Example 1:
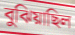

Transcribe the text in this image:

বুঝিয়াছিল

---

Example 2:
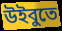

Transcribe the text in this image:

উইবুতে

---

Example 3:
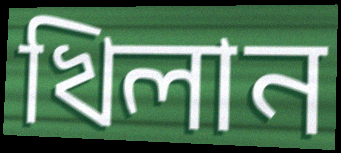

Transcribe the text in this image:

খিলান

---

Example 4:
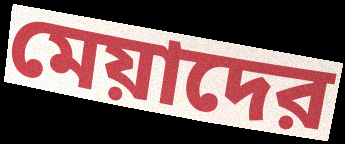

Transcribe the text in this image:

মেয়াদের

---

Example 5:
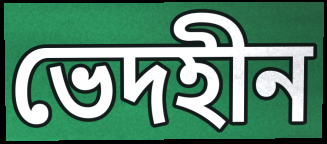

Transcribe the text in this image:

ভেদহীন